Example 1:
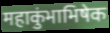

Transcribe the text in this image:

महाकुंभाभिषेक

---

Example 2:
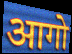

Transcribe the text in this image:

आगो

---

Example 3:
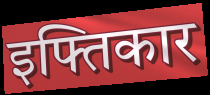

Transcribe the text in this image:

इफ्तिकार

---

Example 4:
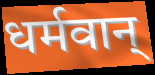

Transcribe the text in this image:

धर्मवान्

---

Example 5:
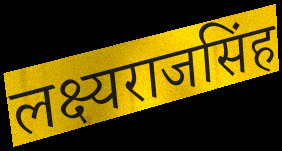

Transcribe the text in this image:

लक्ष्यराजसिंह